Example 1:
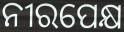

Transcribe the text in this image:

ନୀରପେକ୍ଷ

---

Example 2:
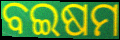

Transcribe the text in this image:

ବଇଷମ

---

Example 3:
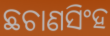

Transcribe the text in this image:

ଛଚାଣସିଂହ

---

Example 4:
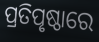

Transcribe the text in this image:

ପ୍ରତିପୃଷ୍ଠାରେ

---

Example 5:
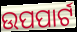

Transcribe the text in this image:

ଉପପାର୍ଟ